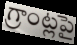
గ్రాంట్లపై